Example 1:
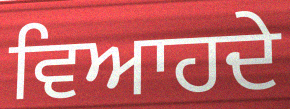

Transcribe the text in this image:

ਵਿਆਹਦੇ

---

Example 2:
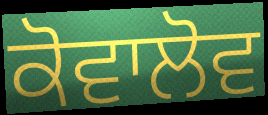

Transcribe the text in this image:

ਕੋਵਾਲੋਵ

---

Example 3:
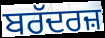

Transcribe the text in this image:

ਬਰੱਦਰਜ਼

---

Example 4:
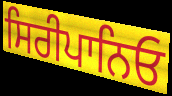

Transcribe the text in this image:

ਸਿਰੀਪਾਨਿਓ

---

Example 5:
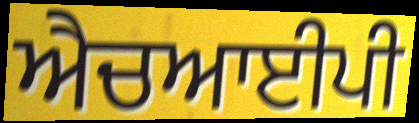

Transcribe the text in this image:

ਐਚਆਈਪੀ